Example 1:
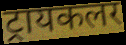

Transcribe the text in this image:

ट्रायकलर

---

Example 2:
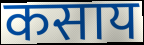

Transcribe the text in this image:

कसाय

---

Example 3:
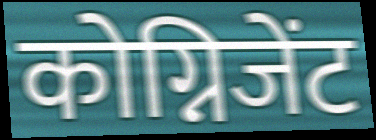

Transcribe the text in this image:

कोग्निजेंट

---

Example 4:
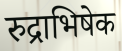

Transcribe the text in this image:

रुद्राभिषेक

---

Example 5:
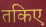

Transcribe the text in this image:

तकिए